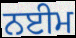
ਨਈਮ